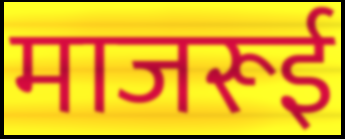
माजरूई